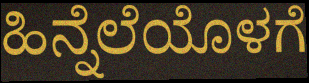
ಹಿನ್ನೆಲೆಯೊಳಗೆ